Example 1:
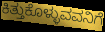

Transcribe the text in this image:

ಕಿತ್ತುಕೊಳ್ಳುವವನಿಗೆ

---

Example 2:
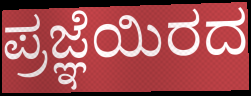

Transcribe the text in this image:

ಪ್ರಜ್ಞೆಯಿರದ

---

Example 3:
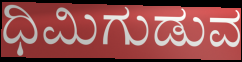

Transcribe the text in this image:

ಧಿಮಿಗುಡುವ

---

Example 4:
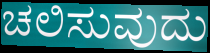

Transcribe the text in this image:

ಚಲಿಸುವುದು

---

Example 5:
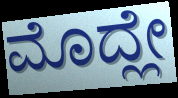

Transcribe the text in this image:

ಮೊದ್ಲೇ